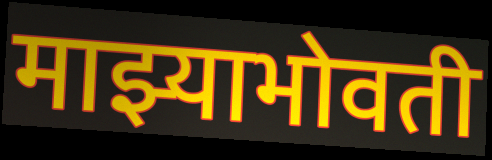
माझ्याभोवती